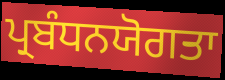
ਪ੍ਰਬੰਧਨਯੋਗਤਾ